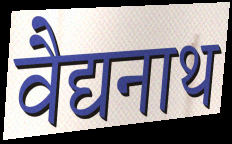
वैद्यनाथ